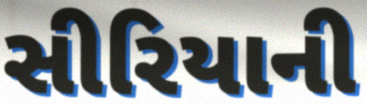
સીરિયાની